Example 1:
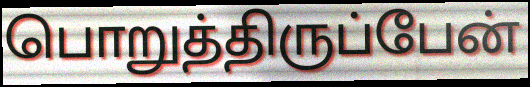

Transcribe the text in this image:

பொறுத்திருப்பேன்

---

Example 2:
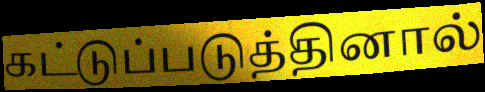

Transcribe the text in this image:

கட்டுப்படுத்தினால்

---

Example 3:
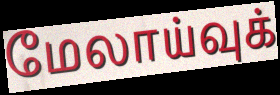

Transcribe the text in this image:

மேலாய்வுக்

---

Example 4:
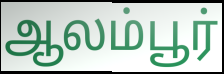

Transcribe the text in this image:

ஆலம்பூர்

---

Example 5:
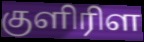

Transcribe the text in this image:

குளிரிள